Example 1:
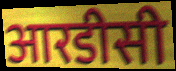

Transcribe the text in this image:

आरडीसी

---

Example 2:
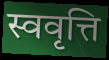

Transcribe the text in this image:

स्ववृत्ति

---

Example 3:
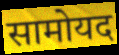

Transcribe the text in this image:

सामोयद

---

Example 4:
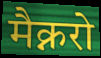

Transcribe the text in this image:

मैक्नरो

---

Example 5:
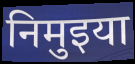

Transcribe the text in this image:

निमुइया